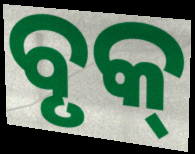
ବୃକ୍